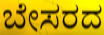
ಬೇಸರದ